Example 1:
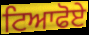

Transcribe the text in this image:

ਟਿਆਫੋਏ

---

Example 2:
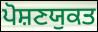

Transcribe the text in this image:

ਪੋਸ਼ਣਯੁਕਤ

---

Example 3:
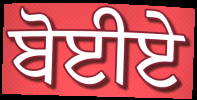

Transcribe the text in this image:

ਬੋਈਏ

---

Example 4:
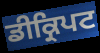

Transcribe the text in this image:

ਡੀਕ੍ਰਿਪਟ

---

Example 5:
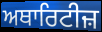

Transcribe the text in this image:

ਅਥਾਰਿਟੀਜ਼